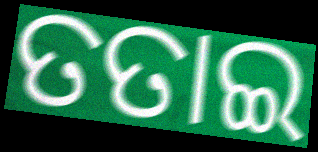
ତତାଇ